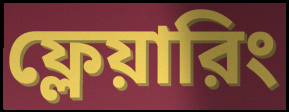
ফ্লেয়ারিং